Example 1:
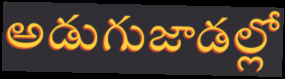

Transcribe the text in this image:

అడుగుజాడల్లో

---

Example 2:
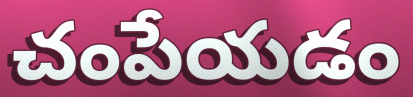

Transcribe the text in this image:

చంపేయడం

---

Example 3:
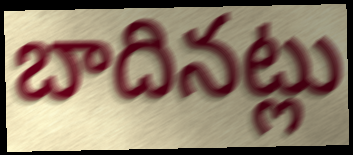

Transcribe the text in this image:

బాదినట్లు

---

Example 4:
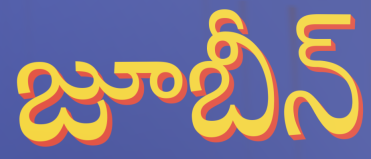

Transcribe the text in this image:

జూబీన్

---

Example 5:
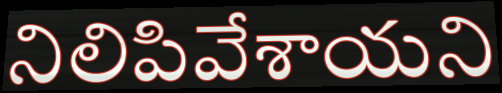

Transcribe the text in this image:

నిలిపివేశాయని